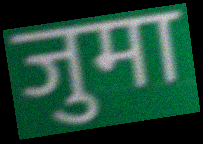
जुमा